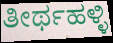
ತೀರ್ಥಹಳ್ಳಿ